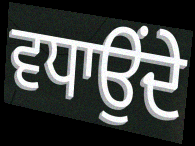
ਵਧਾਉਂਦੇ